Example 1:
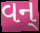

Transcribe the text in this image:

વન્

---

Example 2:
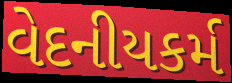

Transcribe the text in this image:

વેદનીયકર્મ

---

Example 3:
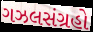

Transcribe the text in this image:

ગઝલસંગ્રહો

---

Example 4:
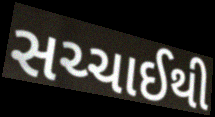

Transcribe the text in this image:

સચ્ચાઈથી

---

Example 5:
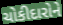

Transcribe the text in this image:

ચોકીદારોને